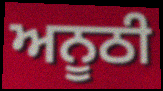
ਅਨੂਠੀ